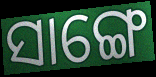
ସାଙ୍ଗେ